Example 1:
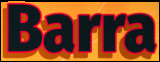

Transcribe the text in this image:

Barra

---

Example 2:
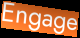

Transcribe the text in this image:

Engage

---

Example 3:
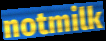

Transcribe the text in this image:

notmilk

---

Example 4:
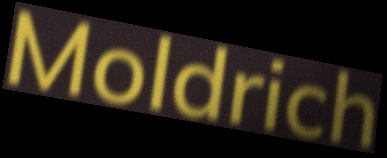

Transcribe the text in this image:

Moldrich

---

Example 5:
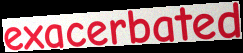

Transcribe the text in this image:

exacerbated